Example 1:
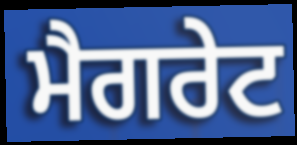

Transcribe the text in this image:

ਮੈਗਰੇਟ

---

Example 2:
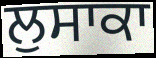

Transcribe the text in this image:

ਲੁਸਾਕਾ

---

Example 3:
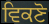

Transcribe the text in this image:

ਵਿਕਣੋ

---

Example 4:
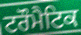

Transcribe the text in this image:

ਟਰੌਮੈਟਿਕ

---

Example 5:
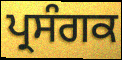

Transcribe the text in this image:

ਪ੍ਰਸੰਗਕ